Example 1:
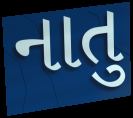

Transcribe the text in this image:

નાતુ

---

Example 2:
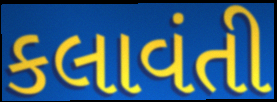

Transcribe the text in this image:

કલાવંતી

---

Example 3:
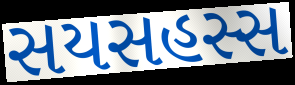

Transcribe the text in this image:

સયસહસ્સ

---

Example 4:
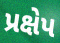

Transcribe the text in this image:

પ્રક્ષેપ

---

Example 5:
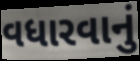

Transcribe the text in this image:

વધારવાનું